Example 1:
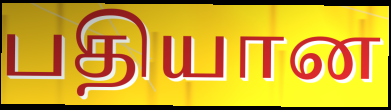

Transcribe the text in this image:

பதியான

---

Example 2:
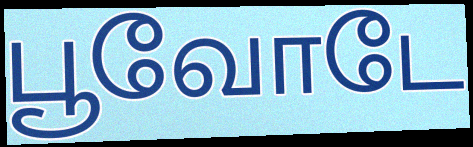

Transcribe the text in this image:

பூவோடே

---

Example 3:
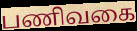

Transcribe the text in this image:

பணிவகை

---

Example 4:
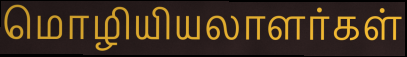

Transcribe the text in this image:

மொழியியலாளர்கள்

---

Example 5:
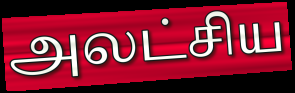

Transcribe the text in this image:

அலட்சிய